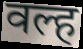
वल्ह